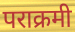
पराक्रमी